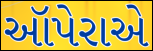
ઑપેરાએ